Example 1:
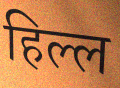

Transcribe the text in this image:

हिल्ल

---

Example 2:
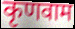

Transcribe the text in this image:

कृणवाम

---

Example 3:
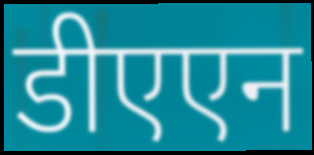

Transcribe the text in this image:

डीएएन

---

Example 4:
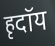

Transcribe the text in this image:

हृदॉय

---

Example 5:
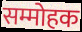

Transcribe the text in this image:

सम्मोहक